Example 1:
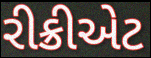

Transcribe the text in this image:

રીક્રીએટ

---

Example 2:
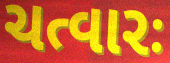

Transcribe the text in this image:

ચત્વારઃ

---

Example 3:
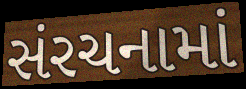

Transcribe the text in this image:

સંરચનામાં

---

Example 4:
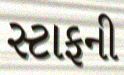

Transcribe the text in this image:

સ્ટાફની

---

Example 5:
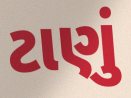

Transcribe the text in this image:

ટાણું